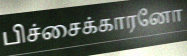
பிச்சைக்காரனோ